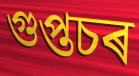
গুপ্তচৰ